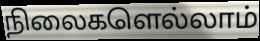
நிலைகளெல்லாம்